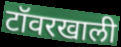
टॉवरखाली